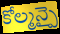
కోల్మన్పై